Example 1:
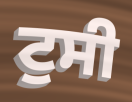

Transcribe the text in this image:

ਟੁਸੀ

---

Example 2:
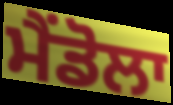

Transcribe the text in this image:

ਮੈਂਡੋਲਾ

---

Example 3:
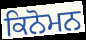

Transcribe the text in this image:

ਕਿਨੋਮਨ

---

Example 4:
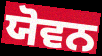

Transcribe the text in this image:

ਯੋਵਨ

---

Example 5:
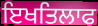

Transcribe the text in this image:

ਇਖਤਿਲਾਫ